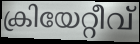
ക്രിയേറ്റീവ്